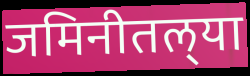
जमिनीतल्या